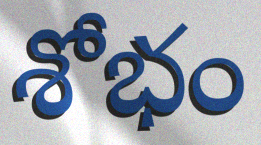
శోభం